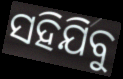
ସହିଯିବୁ